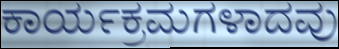
ಕಾರ್ಯಕ್ರಮಗಳಾದವು